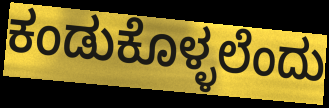
ಕಂಡುಕೊಳ್ಳಲೆಂದು